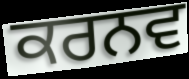
ਕਰਨਵ